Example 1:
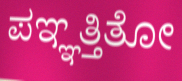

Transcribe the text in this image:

ಪಞ್ಞತ್ತಿತೋ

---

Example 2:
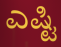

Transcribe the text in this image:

ಎಷ್ಟಿ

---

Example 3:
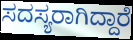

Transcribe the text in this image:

ಸದಸ್ಯರಾಗಿದ್ದಾರೆ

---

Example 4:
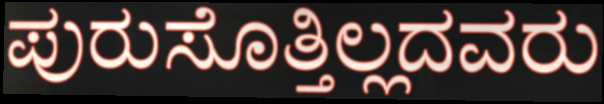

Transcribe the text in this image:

ಪುರುಸೊತ್ತಿಲ್ಲದವರು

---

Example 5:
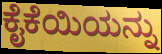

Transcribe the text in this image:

ಕೈಕೆಯಿಯನ್ನು